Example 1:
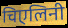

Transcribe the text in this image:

चिएलिनी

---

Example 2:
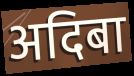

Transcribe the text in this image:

अदिबा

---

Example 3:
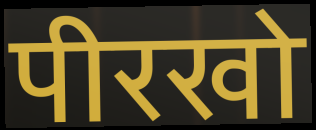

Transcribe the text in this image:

पीरखो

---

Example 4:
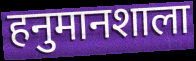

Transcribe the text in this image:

हनुमानशाला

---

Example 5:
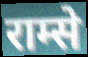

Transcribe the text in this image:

राम्से